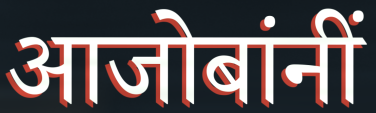
आजोबांनीं